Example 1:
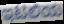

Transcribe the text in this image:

ಇಟಲಿಯ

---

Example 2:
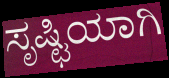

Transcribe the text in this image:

ಸೃಷ್ಟಿಯಾಗಿ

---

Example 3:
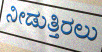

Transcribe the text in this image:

ನೀಡುತ್ತಿರಲು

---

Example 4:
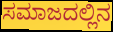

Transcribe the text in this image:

ಸಮಾಜದಲ್ಲಿನ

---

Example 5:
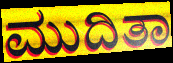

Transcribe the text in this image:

ಮುದಿತಾ